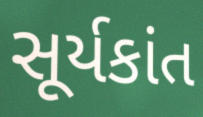
સૂર્યકાંત